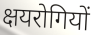
क्षयरोगियों